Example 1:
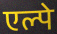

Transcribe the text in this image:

एल्पे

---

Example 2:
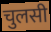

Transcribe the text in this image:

चुलसी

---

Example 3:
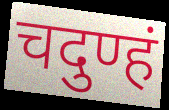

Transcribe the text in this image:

चदुण्हं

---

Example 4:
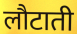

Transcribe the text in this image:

लौटाती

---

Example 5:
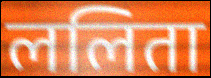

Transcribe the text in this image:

ललिता